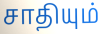
சாதியும்